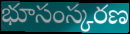
భూసంస్కరణ